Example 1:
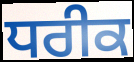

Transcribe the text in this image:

ਧਰੀਕ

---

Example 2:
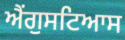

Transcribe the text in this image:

ਐਂਗੁਸਟਿਆਸ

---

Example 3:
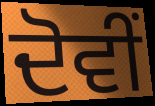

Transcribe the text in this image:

ਦੋਵੀਂ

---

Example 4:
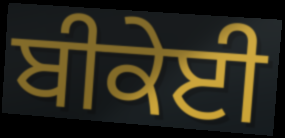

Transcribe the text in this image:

ਬੀਕੇਈ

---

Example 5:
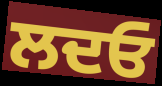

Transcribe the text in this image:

ਲਦਓ